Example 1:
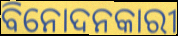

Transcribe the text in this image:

ବିନୋଦନକାରୀ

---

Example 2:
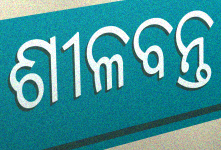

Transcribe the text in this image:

ଶୀଳବନ୍ତ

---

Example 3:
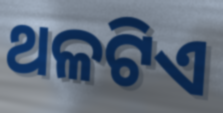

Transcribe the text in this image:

ଥଳଟିଏ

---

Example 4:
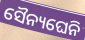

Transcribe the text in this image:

ସୈନ୍ୟଘେନି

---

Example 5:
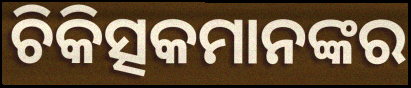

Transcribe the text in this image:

ଚିକିତ୍ସକମାନଙ୍କର